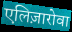
एलिज़ारोवा